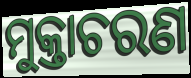
ମୁକ୍ତାଚରଣ